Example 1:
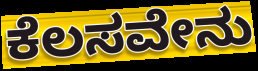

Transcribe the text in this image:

ಕೆಲಸವೇನು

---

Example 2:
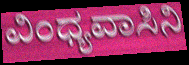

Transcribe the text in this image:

ವಿಂಧ್ಯವಾಸಿನಿ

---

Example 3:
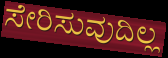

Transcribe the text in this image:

ಸೇರಿಸುವುದಿಲ್ಲ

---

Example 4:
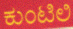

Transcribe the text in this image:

ಕುಂಟಿಲಿ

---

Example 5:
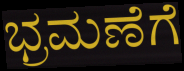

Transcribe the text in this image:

ಭ್ರಮಣೆಗೆ